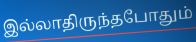
இல்லாதிருந்தபோதும்